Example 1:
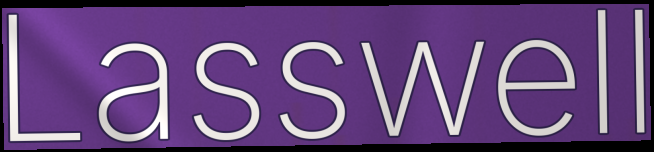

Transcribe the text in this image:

Lasswell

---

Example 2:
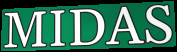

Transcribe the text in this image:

MIDAS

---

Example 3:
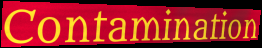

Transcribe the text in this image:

Contamination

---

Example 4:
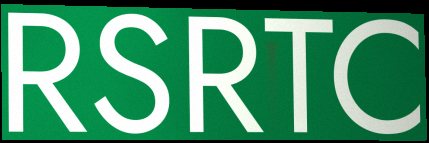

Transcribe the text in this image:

RSRTC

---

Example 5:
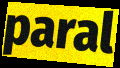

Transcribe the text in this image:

paral